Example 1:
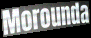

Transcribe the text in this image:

Morounda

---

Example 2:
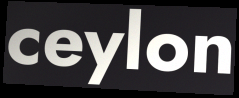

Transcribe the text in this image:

ceylon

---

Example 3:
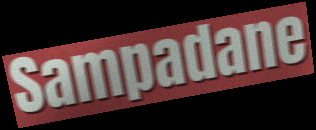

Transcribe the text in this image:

Sampadane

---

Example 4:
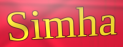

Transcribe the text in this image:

Simha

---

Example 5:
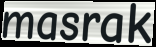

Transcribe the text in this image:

masrak